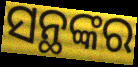
ସନ୍ଥଙ୍କର